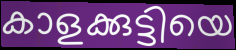
കാളക്കുട്ടിയെ